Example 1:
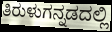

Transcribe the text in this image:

ತಿರುಳುಗನ್ನಡದಲ್ಲಿ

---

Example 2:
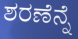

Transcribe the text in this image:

ಶರಣೆನ್ನೆ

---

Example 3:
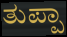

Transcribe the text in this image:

ತುಪ್ಪಾ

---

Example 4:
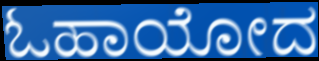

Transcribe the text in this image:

ಓಹಾಯೋದ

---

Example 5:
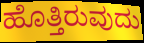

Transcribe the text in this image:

ಹೊತ್ತಿರುವುದು